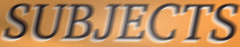
SUBJECTS